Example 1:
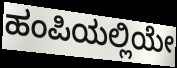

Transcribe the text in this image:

ಹಂಪಿಯಲ್ಲಿಯೇ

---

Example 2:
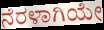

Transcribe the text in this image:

ನೆರಳಾಗಿಯೇ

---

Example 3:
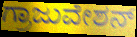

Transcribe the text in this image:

ಗ್ರಾಜುವೇಶನ್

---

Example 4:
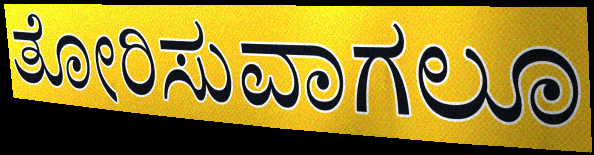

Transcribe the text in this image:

ತೋರಿಸುವಾಗಲೂ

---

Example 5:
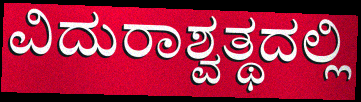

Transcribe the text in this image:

ವಿದುರಾಶ್ವತ್ಥದಲ್ಲಿ